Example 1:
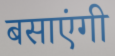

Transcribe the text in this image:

बसाएंगी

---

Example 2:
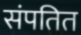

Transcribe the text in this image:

संपतित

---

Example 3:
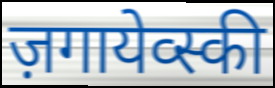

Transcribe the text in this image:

ज़गायेव्स्की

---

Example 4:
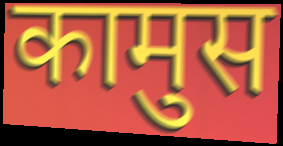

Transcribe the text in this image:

कामुस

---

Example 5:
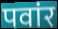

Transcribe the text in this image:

पवांर